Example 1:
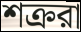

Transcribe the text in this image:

শক্ররা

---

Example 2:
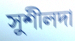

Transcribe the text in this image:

সুশীলদা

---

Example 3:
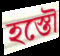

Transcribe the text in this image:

হস্তৌ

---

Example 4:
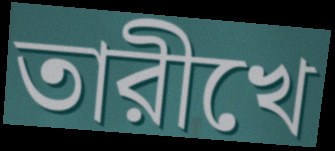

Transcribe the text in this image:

তারীখে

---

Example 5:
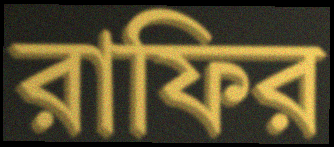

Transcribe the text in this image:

রাফির